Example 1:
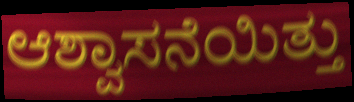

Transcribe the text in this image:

ಆಶ್ವಾಸನೆಯಿತ್ತು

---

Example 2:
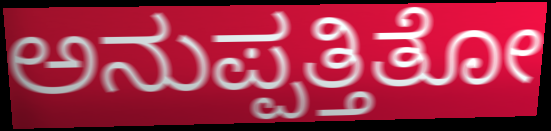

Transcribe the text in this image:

ಅನುಪ್ಪತ್ತಿತೋ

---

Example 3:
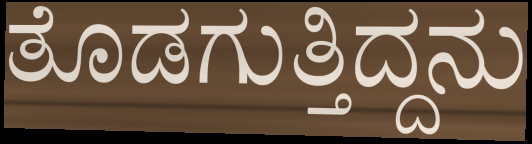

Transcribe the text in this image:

ತೊಡಗುತ್ತಿದ್ದನು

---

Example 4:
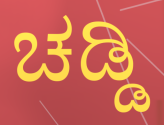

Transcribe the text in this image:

ಚಡ್ಡಿ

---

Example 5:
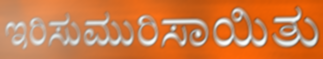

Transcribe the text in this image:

ಇರಿಸುಮುರಿಸಾಯಿತು